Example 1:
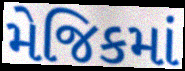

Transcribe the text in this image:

મેજિકમાં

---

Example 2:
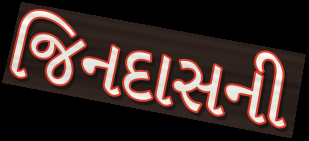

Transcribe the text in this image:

જિનદાસની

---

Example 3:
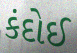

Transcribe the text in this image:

કંદોઈ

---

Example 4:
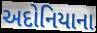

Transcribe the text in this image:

અદોનિયાના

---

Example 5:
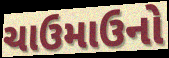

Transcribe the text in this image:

ચાઉમાઉનો